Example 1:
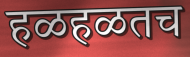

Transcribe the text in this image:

हळहळतच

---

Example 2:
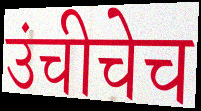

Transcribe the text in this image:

उंचीचेच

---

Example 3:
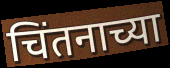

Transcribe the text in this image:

चिंतनाच्या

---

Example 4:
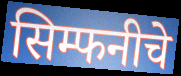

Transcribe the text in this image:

सिम्फनीचे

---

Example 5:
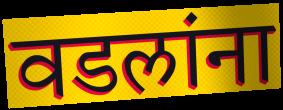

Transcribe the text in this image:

वडलांना